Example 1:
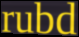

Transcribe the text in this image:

rubd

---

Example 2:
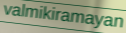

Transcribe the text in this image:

valmikiramayan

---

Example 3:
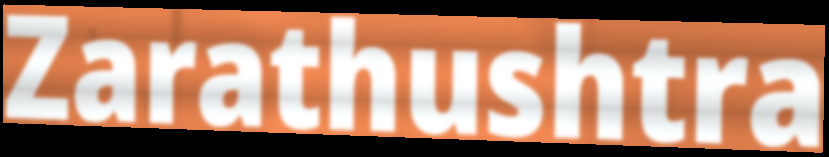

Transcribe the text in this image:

Zarathushtra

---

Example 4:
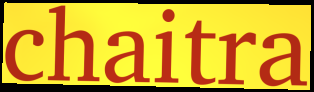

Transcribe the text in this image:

chaitra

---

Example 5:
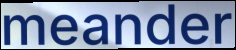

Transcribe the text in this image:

meander